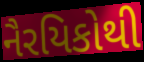
નૈરયિકોથી